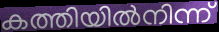
കത്തിയിൽനിന്ന്